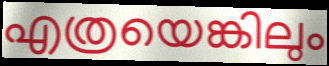
എത്രയെങ്കിലും